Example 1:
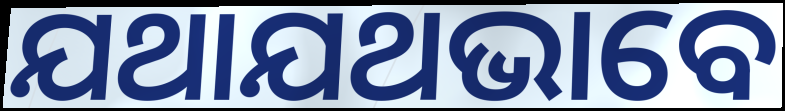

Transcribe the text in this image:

ଯଥାଯଥଭାବେ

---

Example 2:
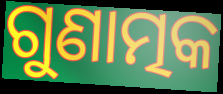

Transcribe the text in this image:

ଗୁଣାତ୍ମକ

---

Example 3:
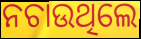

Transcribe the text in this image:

ନଚାଉଥିଲେ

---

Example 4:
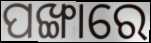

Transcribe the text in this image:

ପଙ୍ଖାରେ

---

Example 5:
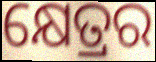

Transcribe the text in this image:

କ୍ଷେତ୍ରର